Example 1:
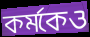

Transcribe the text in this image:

কর্মকেও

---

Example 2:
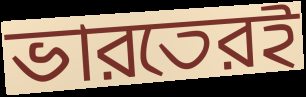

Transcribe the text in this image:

ভারতেরই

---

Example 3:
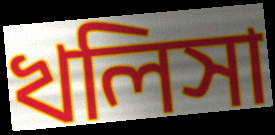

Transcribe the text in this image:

খলিসা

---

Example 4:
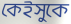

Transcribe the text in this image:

কেইসুকে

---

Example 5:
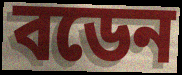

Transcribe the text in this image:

বডেন